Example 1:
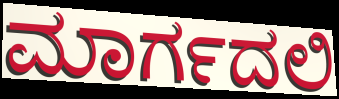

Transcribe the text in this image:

ಮಾರ್ಗದಲಿ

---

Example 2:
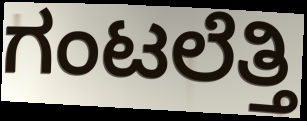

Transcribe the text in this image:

ಗಂಟಲೆತ್ತಿ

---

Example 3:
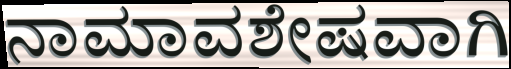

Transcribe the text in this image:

ನಾಮಾವಶೇಷವಾಗಿ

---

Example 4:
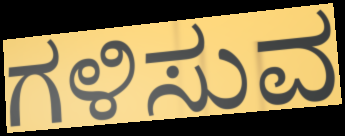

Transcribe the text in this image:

ಗಳಿಸುವ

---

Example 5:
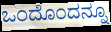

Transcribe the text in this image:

ಒಂದೊಂದನ್ನೂ